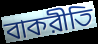
বাকরীতি